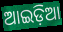
ଆଇଡ଼ିଆ